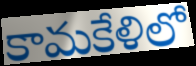
కామకేళిలో